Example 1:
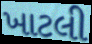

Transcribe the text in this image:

ખાટલી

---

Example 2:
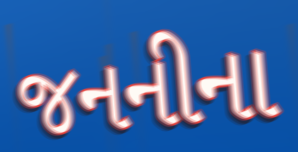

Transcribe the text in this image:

જનનીના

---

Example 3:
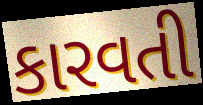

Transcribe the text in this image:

કારવતી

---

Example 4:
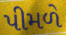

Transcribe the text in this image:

પીમળે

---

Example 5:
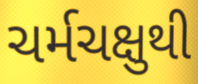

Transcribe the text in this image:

ચર્મચક્ષુથી